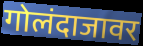
गोलंदाजावर